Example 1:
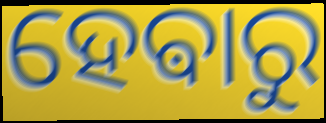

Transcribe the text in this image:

ହେଵାରୁ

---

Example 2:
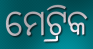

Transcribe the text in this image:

ମେଟ୍ରିକ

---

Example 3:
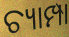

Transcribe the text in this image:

ଚ୍ୟାମ୍ପା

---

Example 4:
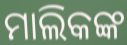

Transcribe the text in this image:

ମାଲିକଙ୍କ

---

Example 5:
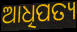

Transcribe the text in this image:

ଆଧିପତ୍ୟ